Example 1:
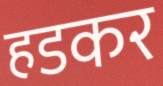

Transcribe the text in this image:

हडकर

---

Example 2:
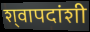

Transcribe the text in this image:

श्वापदांशी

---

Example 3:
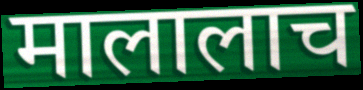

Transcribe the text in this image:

मालालाच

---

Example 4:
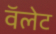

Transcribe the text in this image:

वॅलेट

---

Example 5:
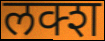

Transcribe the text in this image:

लक्श